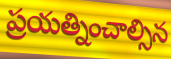
ప్రయత్నించాల్సిన